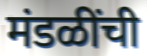
मंडळींची